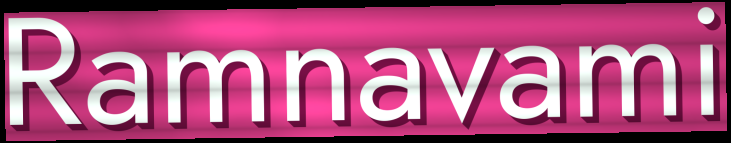
Ramnavami